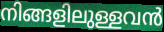
നിങ്ങളിലുള്ളവൻ